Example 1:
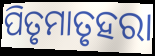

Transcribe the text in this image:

ପିତୃମାତୃହରା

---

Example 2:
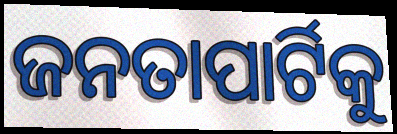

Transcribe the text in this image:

ଜନତାପାର୍ଟିକୁ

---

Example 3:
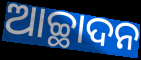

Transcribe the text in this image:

ଆଚ୍ଛାଦନ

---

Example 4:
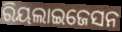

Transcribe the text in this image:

ରିୟଲାଇଜେସନ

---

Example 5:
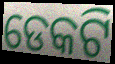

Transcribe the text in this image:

ଡେକଟି